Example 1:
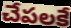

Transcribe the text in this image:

చేపలకే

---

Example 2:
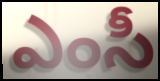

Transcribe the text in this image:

ఎంసీ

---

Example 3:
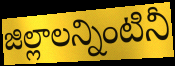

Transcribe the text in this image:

జిల్లాలన్నింటినీ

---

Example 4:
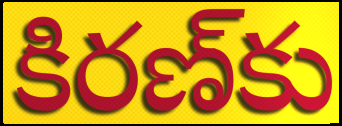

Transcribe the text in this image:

కిరణ్‌కు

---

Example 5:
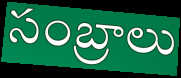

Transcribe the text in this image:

సంబ్రాలు